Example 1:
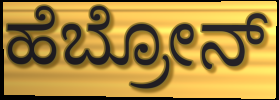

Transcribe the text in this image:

ಹೆಬ್ರೋನ್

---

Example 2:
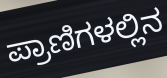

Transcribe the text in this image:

ಪ್ರಾಣಿಗಳಲ್ಲಿನ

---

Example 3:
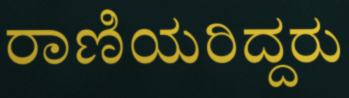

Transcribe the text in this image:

ರಾಣಿಯರಿದ್ದರು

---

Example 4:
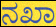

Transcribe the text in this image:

ನಖಾ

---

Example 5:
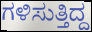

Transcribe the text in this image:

ಗಳಿಸುತ್ತಿದ್ದ